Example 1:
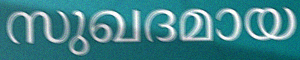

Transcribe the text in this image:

സുഖദമായ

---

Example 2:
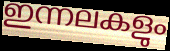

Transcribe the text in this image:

ഇന്നലകളും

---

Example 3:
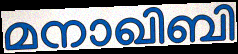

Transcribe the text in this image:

മനാഖിബി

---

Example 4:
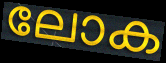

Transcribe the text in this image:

ലോക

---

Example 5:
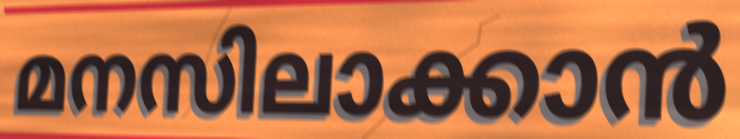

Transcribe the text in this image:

മനസിലാക്കാൻ